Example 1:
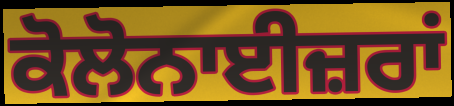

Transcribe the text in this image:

ਕੋਲੋਨਾਈਜ਼ਰਾਂ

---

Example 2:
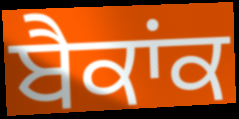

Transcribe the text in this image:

ਬੈਕਾਂਕ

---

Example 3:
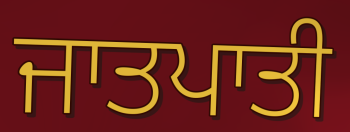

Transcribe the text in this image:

ਜਾਤਪਾਤੀ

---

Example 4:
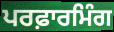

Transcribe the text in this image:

ਪਰਫ਼ਾਰਮਿੰਗ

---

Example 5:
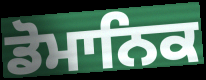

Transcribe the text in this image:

ਡੋਮਾਨਿਕ